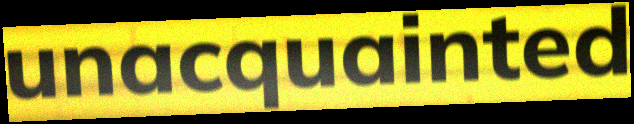
unacquainted